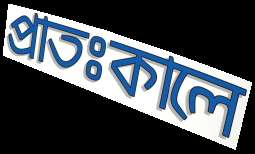
প্রাতঃকালে